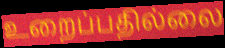
உறைப்பதில்லை